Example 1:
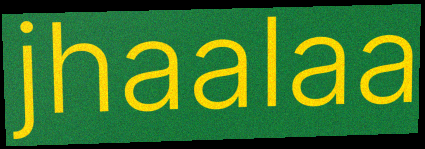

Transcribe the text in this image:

jhaalaa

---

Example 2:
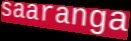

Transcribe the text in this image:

saaranga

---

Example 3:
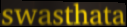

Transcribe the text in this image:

swasthata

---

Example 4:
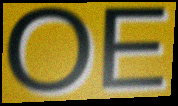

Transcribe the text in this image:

OE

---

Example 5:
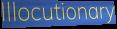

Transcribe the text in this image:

Illocutionary